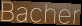
Bacher